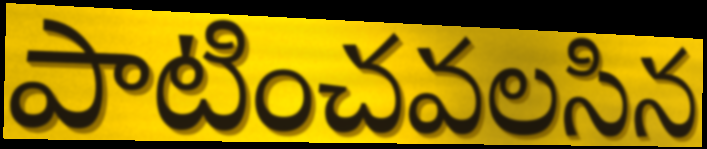
పాటించవలసిన